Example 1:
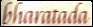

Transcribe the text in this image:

bharatada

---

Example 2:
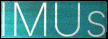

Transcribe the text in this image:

IMUs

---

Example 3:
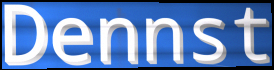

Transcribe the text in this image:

Dennst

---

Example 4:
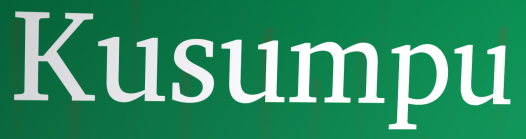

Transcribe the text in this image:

Kusumpu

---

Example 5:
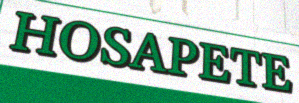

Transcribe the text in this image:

HOSAPETE